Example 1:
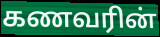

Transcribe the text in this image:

கணவரின்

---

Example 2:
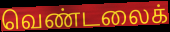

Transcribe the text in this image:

வெண்டலைக்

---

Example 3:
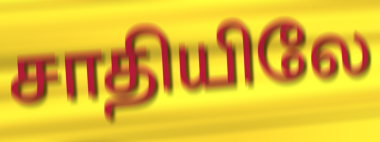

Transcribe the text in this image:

சாதியிலே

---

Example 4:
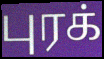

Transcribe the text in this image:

புரக்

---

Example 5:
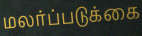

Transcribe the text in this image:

மலர்ப்படுக்கை